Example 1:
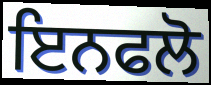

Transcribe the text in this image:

ਇਨਫਲੋ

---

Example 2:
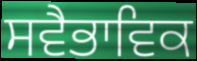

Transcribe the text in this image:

ਸਵੈਭਾਵਿਕ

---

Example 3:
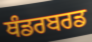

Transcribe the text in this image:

ਥੰਡਰਬਰਡ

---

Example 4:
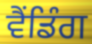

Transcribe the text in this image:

ਵੈਂਡਿੰਗ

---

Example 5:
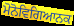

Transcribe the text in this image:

ਮੋਨੋਵਿਗਿਆਨਕ